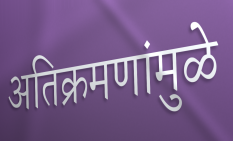
अतिक्रमणांमुळे